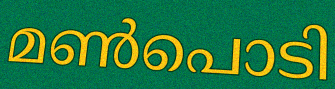
മൺപൊടി